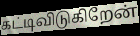
கட்டிவிடுகிறேன்